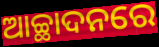
ଆଚ୍ଛାଦନରେ